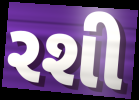
રશી